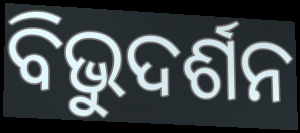
ବିଭୁଦର୍ଶନ